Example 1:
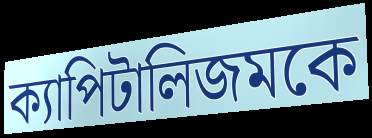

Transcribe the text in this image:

ক্যাপিটালিজমকে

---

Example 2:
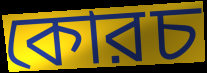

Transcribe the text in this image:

কোরচ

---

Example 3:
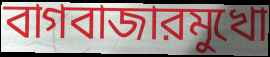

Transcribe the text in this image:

বাগবাজারমুখো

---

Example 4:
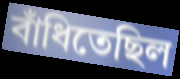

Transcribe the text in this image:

বাঁধিতেছিল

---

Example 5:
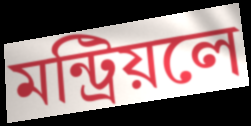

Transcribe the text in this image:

মন্ট্রিয়লে